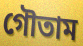
গৌতাম